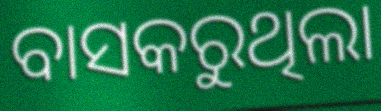
ବାସକରୁଥିଲା